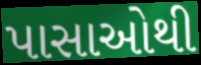
પાસાઓથી